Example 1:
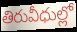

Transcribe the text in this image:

తిరువీధుల్లో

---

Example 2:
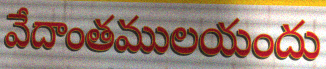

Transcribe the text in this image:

వేదాంతములయందు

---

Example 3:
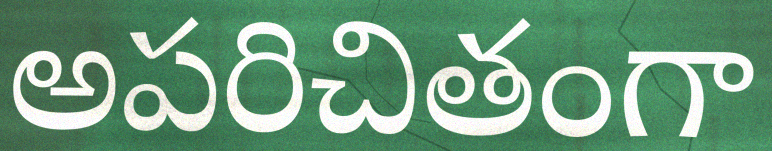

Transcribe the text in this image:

అపరిచితంగా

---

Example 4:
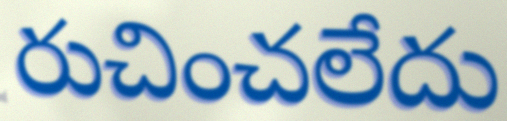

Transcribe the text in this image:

రుచించలేదు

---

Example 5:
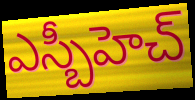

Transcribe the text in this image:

ఎస్బీహెచ్